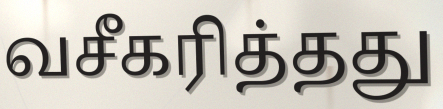
வசீகரித்தது